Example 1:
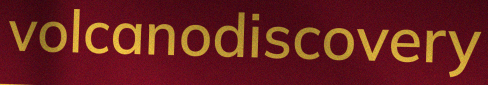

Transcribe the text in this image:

volcanodiscovery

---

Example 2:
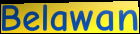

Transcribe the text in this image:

Belawan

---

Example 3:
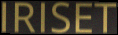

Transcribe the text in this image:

IRISET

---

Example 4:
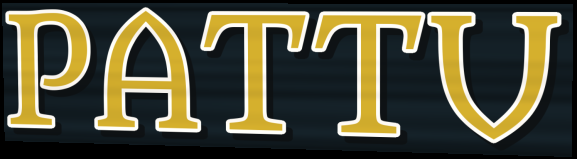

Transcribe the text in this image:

PATTU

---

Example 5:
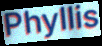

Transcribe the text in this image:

Phyllis